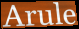
Arule